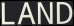
LAND